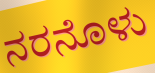
ನರನೊಳು